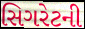
સિગરેટની